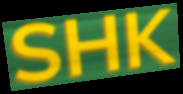
SHK